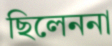
ছিলেননা